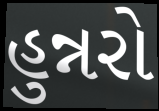
હુન્નરો